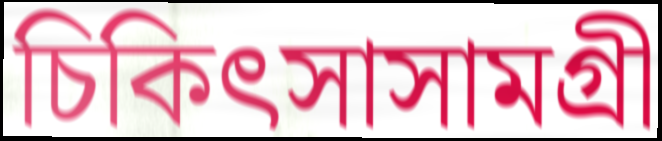
চিকিৎসাসামগ্রী